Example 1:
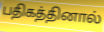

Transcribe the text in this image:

பதிகத்தினால்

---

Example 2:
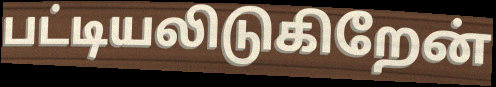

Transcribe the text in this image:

பட்டியலிடுகிறேன்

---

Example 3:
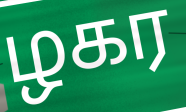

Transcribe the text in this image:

ழகர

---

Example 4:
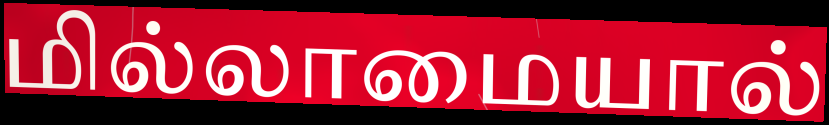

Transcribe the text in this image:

மில்லாமையால்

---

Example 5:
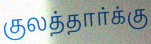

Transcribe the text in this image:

குலத்தார்க்கு